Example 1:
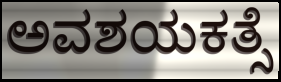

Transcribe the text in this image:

ಅವಶಯಕತ್ಸೆ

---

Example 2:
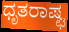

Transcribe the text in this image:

ಧೃತರಾಷ್ಟ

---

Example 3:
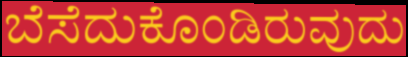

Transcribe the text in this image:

ಬೆಸೆದುಕೊಂಡಿರುವುದು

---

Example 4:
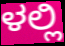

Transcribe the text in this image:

ಳಲ್ಲಿ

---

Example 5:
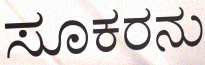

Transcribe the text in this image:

ಸೂಕರನು